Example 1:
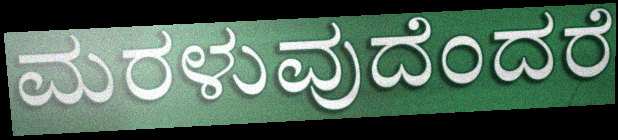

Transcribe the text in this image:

ಮರಳುವುದೆಂದರೆ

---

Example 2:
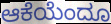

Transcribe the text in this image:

ಆಕೆಯೆಂದೂ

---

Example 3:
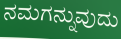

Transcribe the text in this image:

ನಮಗನ್ನುವುದು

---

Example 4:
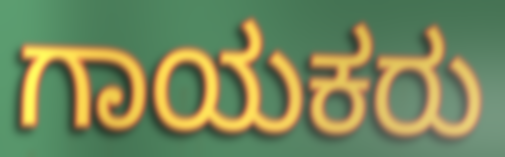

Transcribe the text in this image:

ಗಾಯಕರು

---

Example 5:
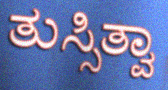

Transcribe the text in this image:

ತುಸ್ಸಿತ್ವಾ